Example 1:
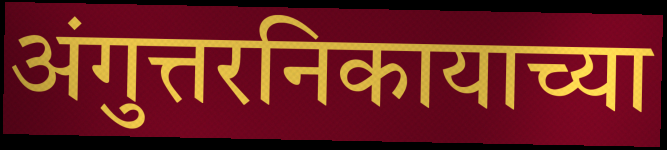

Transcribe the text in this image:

अंगुत्तरनिकायाच्या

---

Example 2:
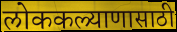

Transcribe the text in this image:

लोककल्याणासाठी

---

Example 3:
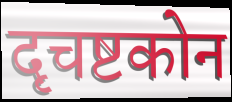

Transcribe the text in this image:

दृचष्टकोन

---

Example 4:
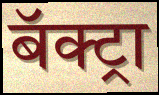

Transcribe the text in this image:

बॅक्ट्रा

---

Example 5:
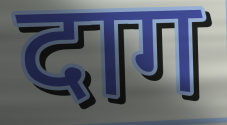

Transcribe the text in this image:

दाग